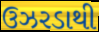
ઉઝરડાથી